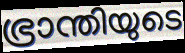
ഭ്രാന്തിയുടെ